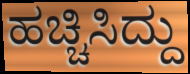
ಹಚ್ಚಿಸಿದ್ದು